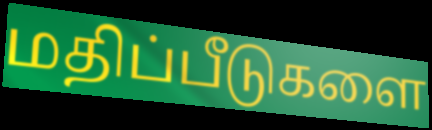
மதிப்பீடுகளை